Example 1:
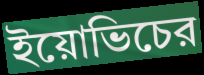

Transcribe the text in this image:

ইয়োভিচের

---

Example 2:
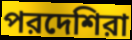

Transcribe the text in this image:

পরদেশিরা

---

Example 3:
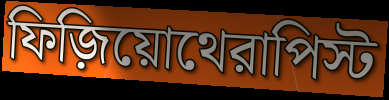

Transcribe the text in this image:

ফিজ়িয়োথেরাপিস্ট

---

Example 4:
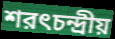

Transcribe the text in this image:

শরৎচন্দ্রীয়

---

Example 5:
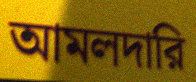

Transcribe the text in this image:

আমলদারি